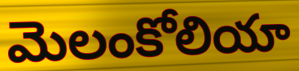
మెలంకోలియా